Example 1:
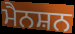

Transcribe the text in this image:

ਮੈਨਸ਼ਨ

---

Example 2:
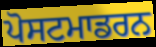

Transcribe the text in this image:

ਪੋਸਟਮਾਡਰਨ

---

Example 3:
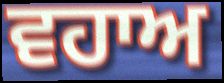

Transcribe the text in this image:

ਵਹਾਅ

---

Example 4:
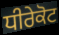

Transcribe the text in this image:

ਧੀਰੇਕੋਟ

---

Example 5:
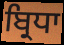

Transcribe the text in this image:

ਬ੍ਰਿਧਾ